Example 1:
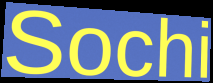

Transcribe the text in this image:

Sochi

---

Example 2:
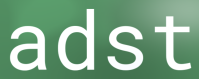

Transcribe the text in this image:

adst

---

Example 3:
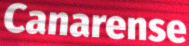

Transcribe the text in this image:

Canarense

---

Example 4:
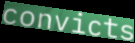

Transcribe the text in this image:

convicts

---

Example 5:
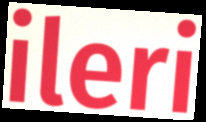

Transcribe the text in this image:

ileri